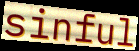
sinful